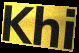
Khi